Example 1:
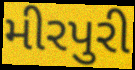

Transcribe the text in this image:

મીરપુરી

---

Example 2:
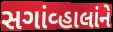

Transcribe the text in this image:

સગાંવ્હાલાંને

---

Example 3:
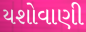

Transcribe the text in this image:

યશોવાણી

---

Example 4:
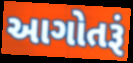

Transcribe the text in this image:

આગોતરૂં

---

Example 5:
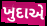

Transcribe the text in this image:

ખુદાએ